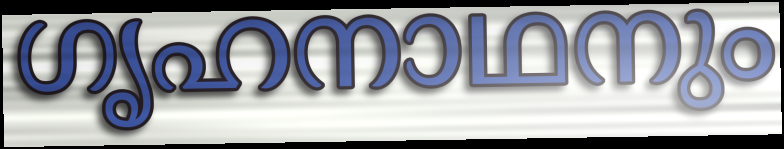
ഗൃഹനാഥനും